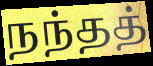
நந்தத்